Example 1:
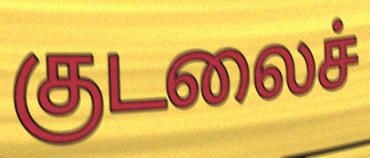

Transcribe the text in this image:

குடலைச்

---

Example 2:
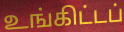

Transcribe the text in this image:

உங்கிட்டப்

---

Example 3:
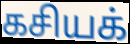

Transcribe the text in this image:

கசியக்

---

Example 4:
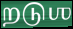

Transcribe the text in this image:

றடுஶ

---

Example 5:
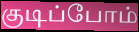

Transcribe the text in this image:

குடிப்போம்